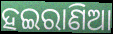
ହଇରାଣିଆ